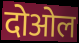
दोओल